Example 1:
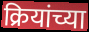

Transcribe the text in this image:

क्रियांच्या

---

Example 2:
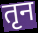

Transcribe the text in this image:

तृन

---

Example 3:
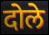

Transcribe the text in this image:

दोले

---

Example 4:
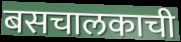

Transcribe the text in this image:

बसचालकाची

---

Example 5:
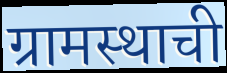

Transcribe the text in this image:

ग्रामस्थाची